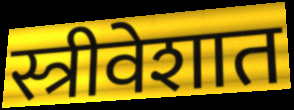
स्त्रीवेशात